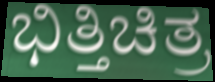
ಭಿತ್ತಿಚಿತ್ರ